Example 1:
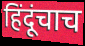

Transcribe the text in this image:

हिंदूंचाच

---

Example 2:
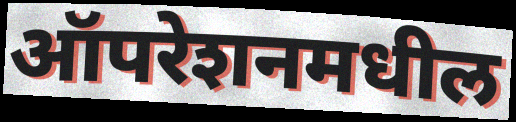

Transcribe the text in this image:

ऑपरेशनमधील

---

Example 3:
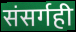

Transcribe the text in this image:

संसर्गही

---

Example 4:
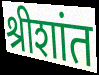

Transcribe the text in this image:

श्रीशांत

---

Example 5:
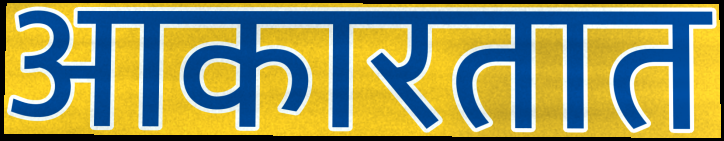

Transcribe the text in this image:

आकारतात